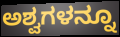
ಅಶ್ವಗಳನ್ನೂ